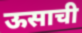
ऊसाची